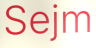
Sejm